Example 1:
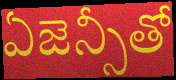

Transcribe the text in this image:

ఏజెన్సీతో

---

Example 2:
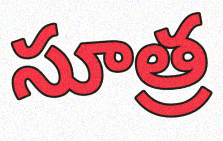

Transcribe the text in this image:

సూత్ర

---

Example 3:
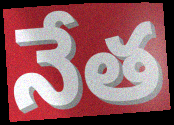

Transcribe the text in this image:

నేత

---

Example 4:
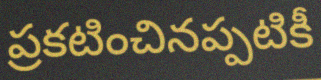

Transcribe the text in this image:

ప్రకటించినప్పటికీ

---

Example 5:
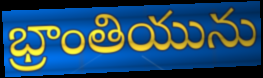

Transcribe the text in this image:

భ్రాంతియును